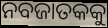
ନବଜାତକକୁ